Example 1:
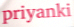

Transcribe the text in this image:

priyanki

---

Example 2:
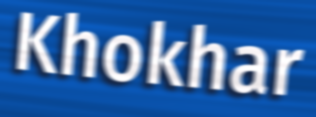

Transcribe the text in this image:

Khokhar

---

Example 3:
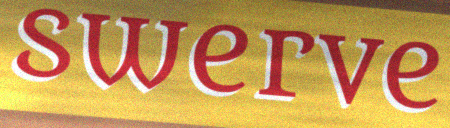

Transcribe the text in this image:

swerve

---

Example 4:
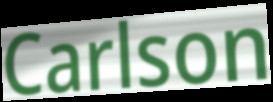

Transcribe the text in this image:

Carlson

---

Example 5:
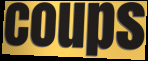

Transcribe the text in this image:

coups